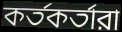
কর্তকর্তারা